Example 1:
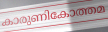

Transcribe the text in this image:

കാരുണികോത്തമ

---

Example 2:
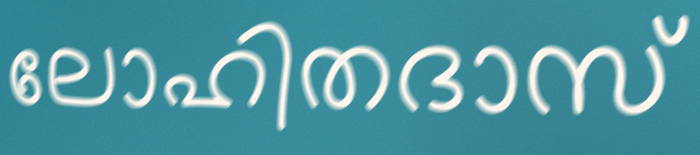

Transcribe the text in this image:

ലോഹിതദാസ്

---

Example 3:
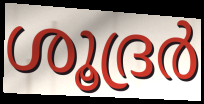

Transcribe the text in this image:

ശൂദ്രർ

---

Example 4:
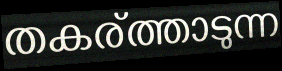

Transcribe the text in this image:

തകര്ത്താടുന്ന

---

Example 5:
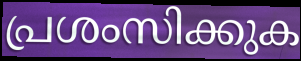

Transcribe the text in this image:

പ്രശംസിക്കുക